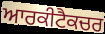
ਆਰਕੀਟੈਕਚਰ